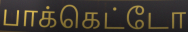
பாக்கெட்டோ